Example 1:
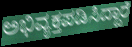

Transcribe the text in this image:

ಅಭಿವ್ಯಕ್ತಪಡಿಸಿದ್ದಾರೆ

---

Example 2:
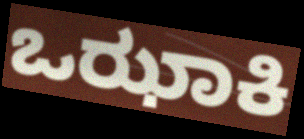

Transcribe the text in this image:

ಒಝಾಕಿ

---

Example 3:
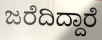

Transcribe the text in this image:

ಜರೆದಿದ್ದಾರೆ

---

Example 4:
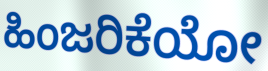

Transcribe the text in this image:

ಹಿಂಜರಿಕೆಯೋ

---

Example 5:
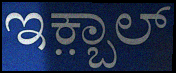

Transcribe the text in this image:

ಇಕ಼್ಬಾಲ್